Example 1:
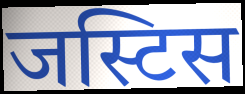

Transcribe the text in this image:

जस्टिस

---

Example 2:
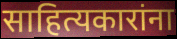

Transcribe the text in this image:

साहित्यकारांना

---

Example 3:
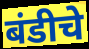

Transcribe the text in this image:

बंडीचे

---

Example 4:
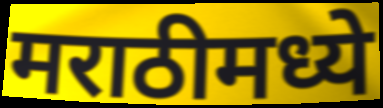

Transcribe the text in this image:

मराठीमध्ये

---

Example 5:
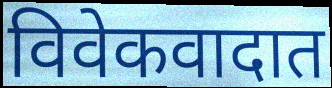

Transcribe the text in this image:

विवेकवादात